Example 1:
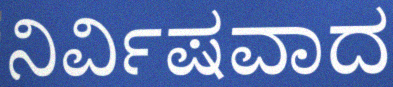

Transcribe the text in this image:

ನಿರ್ವಿಷವಾದ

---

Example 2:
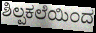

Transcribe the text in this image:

ಶಿಲ್ಪಕಲೆಯಿಂದ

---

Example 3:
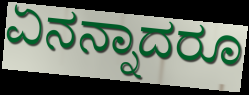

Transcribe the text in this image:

ಏನನ್ನಾದರೂ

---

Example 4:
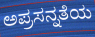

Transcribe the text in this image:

ಅಪ್ರಸನ್ನತೆಯ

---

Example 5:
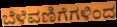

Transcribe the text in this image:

ಬೆಳೆವಣಿಗೆಗಳಿಂದ